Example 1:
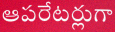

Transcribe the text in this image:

ఆపరేటర్లుగా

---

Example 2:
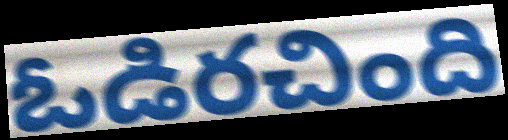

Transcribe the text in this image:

ఓడిరచింది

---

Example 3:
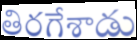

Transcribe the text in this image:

తిరగేశాడు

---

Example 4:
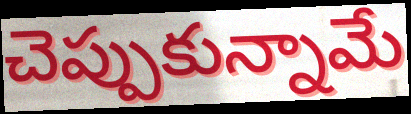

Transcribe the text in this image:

చెప్పుకున్నామే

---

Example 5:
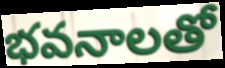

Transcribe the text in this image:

భవనాలతో